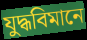
যুদ্ধবিমানে